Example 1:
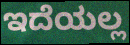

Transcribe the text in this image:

ಇದೆಯಲ್ಲ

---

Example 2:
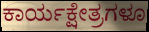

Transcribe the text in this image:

ಕಾರ್ಯಕ್ಷೇತ್ರಗಳೂ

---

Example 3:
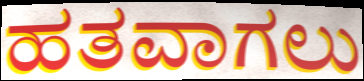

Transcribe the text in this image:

ಹತವಾಗಲು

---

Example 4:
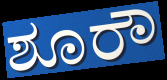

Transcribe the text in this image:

ಶೂರೌ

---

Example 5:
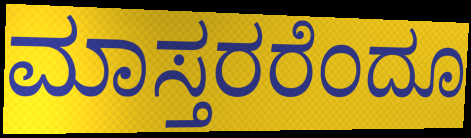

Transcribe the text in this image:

ಮಾಸ್ತರರೆಂದೂ